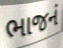
ભાજનં